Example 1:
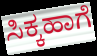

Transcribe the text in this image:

ಸಿಕ್ಕಹಾಗೆ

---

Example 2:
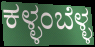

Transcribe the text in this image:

ಕಳ್ಳಂಬೆಳ್ಳ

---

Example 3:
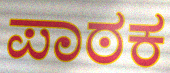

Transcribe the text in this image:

ಪಾಠಕ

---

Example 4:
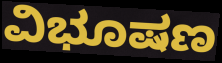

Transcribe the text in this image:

ವಿಭೂಷಣ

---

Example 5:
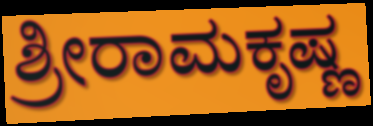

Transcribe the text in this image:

ಶ್ರೀರಾಮಕೃಷ್ಣ